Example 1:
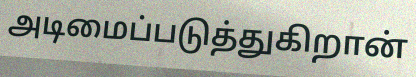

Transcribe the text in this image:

அடிமைப்படுத்துகிறான்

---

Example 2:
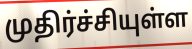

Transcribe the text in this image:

முதிர்ச்சியுள்ள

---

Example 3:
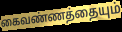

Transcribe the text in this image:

கைவண்ணத்தையும்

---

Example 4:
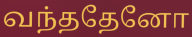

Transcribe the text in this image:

வந்ததேனோ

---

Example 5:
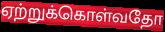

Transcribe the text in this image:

ஏற்றுக்கொள்வதோ